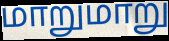
மாறுமாறு